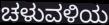
ಚಳುವಳಿಯ